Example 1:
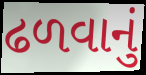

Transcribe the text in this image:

ઢળવાનું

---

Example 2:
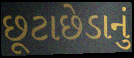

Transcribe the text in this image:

છૂટાછેડાનું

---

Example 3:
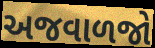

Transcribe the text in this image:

અજવાળજો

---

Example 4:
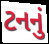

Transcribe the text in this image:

ટનનું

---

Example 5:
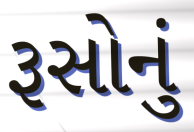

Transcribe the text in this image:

રૂસોનું